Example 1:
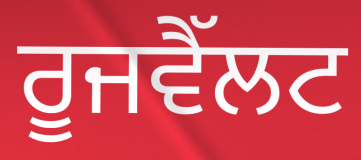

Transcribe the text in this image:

ਰੂਜਵੈੱਲਟ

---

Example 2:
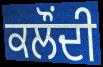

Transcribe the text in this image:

ਕਲੌਂਦੀ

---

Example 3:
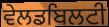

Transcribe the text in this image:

ਵੇਲਡਬਿਲਟੀ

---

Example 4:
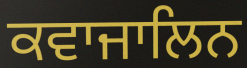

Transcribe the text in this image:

ਕਵਾਜਾਲਿਨ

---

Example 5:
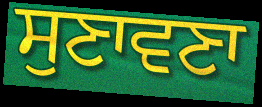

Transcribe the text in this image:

ਸੁਣਾਵਣਾ